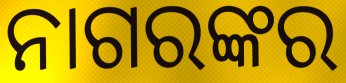
ନାଗରଙ୍କର